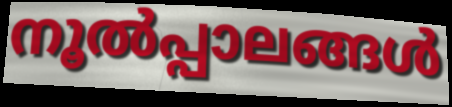
നൂൽപ്പാലങ്ങൾ